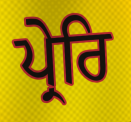
ਪ੍ਰੇਰਿ